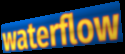
waterflow